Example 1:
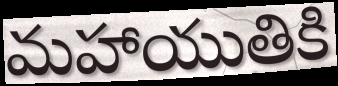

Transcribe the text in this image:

మహాయుతికి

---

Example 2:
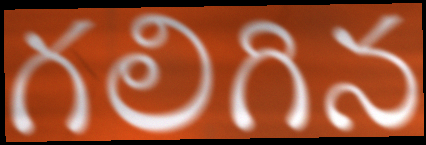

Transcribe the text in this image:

గలిగిన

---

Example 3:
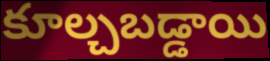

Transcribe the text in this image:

కూల్చబడ్డాయి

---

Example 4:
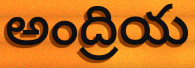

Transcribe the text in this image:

అంద్రియ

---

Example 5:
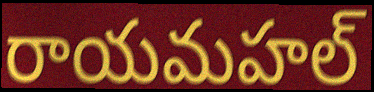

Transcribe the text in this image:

రాయమహల్